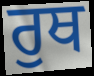
ਰੁਥ